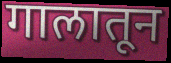
गालातून